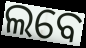
ଲବେ